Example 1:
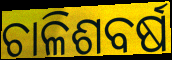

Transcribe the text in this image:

ଚାଳିଶବର୍ଷ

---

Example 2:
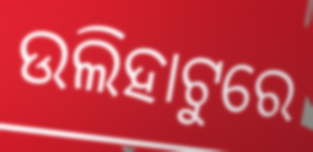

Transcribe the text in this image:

ଉଲିହାଟୁରେ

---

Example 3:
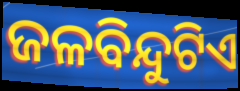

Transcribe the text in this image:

ଜଳବିନ୍ଦୁଟିଏ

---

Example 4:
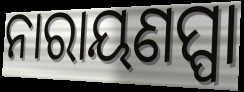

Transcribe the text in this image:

ନାରାୟଣପ୍ପା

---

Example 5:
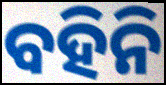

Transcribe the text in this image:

ବହିନି